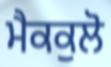
ਮੈਕਕੁਲੋ